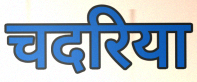
चदरिया